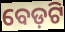
ବେଡ଼ଟି